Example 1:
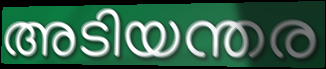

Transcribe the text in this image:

അടിയന്തര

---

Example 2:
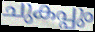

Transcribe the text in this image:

ചുകപ്പും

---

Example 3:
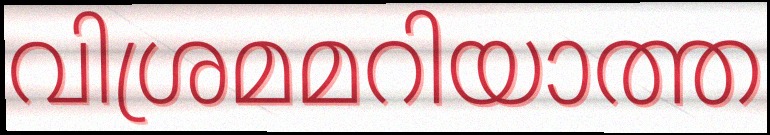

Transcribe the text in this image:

വിശ്രമമറിയാത്ത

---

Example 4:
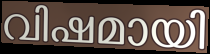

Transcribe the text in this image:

വിഷമായി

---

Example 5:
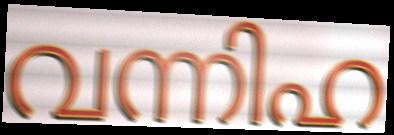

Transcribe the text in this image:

വന്നിഹ